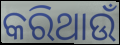
କରିଥାଉଁ